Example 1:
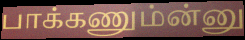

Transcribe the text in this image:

பாக்கணும்ன்னு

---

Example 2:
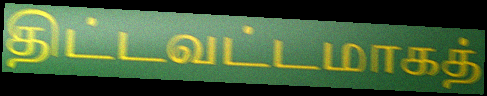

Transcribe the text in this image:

திட்டவட்டமாகத்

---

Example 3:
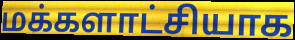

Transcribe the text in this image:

மக்களாட்சியாக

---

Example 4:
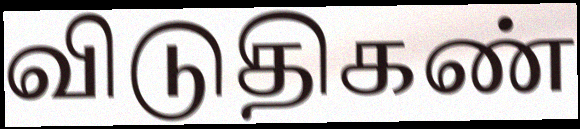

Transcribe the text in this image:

விடுதிகண்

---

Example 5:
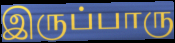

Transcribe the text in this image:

இருப்பாரு